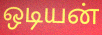
ஒடியன்